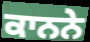
ਕਾਨਨੇ